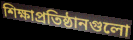
শিক্ষাপ্রতিষ্ঠানগুলো